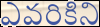
ఎవరికిని